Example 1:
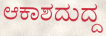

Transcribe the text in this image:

ಆಕಾಶದುದ್ದ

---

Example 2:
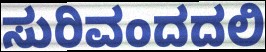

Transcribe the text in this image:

ಸುರಿವಂದದಲಿ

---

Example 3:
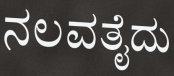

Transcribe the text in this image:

ನಲವತೈದು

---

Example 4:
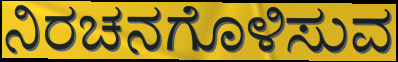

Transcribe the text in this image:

ನಿರಚನಗೊಳಿಸುವ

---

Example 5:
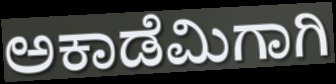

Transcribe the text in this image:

ಅಕಾಡೆಮಿಗಾಗಿ